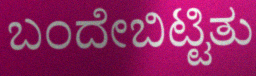
ಬಂದೇಬಿಟ್ಟಿತು